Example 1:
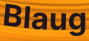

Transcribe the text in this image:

Blaug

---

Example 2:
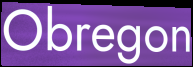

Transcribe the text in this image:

Obregon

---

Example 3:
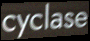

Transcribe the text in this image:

cyclase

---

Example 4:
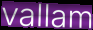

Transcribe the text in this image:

vallam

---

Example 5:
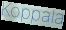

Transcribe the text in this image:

Koppala